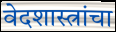
वेदशास्त्रांचा